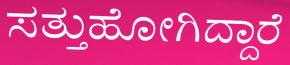
ಸತ್ತುಹೋಗಿದ್ದಾರೆ